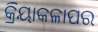
କ୍ରିୟାକଳାପର